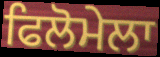
ਫਿਲੋਮੇਲਾ